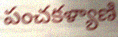
పంచకళ్యాణి